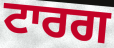
ਟਾਰਗ